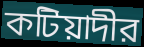
কটিয়াদীর